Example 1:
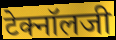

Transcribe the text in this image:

टेक्‍नॉलजी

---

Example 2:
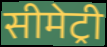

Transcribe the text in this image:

सीमेट्री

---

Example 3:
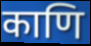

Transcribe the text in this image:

काणि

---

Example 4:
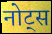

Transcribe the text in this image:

नोट्‌स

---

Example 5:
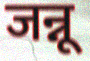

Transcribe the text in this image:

जन्नू